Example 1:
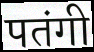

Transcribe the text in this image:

पतंगी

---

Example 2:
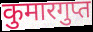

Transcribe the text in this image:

कुमारगुप्त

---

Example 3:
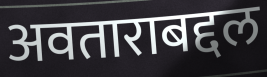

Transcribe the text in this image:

अवताराबद्दल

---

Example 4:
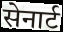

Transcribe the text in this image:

सेनार्ट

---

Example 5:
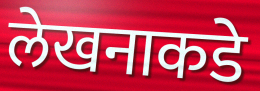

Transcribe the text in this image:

लेखनाकडे